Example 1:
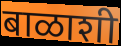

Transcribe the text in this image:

बाळाशी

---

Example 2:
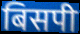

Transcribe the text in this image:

बिसपी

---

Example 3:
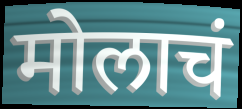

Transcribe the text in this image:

मोलाचं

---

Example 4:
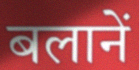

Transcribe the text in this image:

बलानें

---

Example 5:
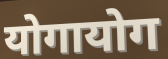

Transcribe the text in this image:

योगायोग